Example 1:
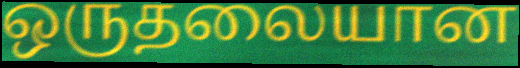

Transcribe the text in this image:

ஒருதலையான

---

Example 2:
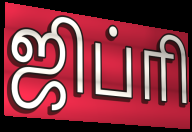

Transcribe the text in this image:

ஜிப்ரி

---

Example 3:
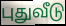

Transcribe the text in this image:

புதுவீடு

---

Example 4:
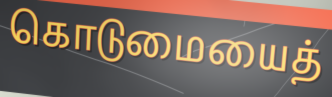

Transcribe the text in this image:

கொடுமையைத்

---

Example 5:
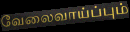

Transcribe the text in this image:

வேலைவாய்ப்பும்